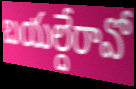
బయల్దేరావో